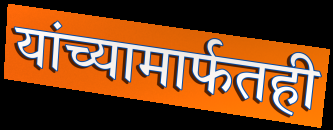
यांच्यामार्फतही